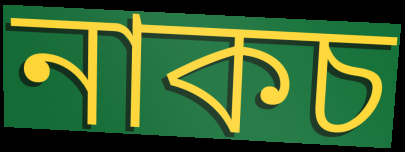
নাকচ